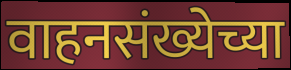
वाहनसंख्येच्या